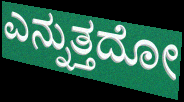
ಎನ್ನುತ್ತದೋ